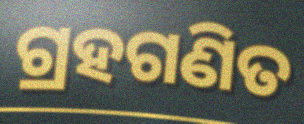
ଗ୍ରହଗଣିତ